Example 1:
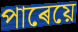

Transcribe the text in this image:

পাৰেয়ে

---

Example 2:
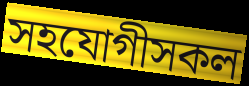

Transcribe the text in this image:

সহযোগীসকল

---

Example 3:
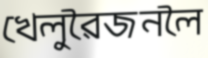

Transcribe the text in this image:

খেলুৱৈজনলৈ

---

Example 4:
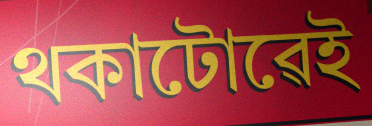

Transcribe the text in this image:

থকাটোৱেই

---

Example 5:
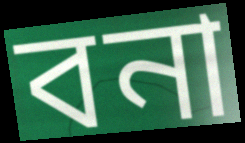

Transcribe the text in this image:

বনা